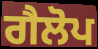
ਗੈਲੋਪ